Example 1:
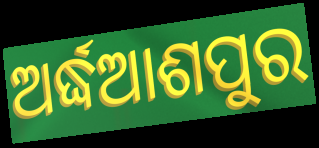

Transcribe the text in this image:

ଅର୍ଦ୍ଧଆଶପୁର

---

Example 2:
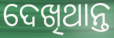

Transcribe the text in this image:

ଦେଖିଥାନ୍ତ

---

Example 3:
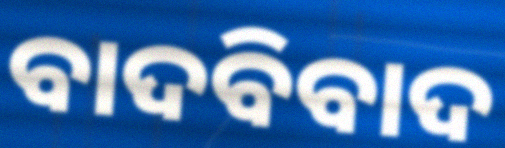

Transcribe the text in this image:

ବାଦବିବାଦ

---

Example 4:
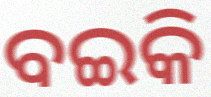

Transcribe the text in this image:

ବଇକି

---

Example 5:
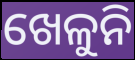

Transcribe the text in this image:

ଖେଳୁନି